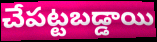
చేపట్టబడ్డాయి